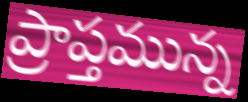
ప్రాప్తమున్న